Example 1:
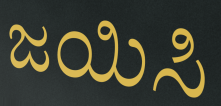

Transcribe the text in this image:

ಜಯಿಸಿ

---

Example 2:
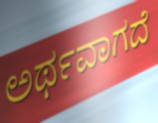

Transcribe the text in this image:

ಅರ್ಥವಾಗದೆ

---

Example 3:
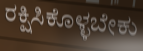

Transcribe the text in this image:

ರಕ್ಷಿಸಿಕೊಳ್ಳಬೇಕು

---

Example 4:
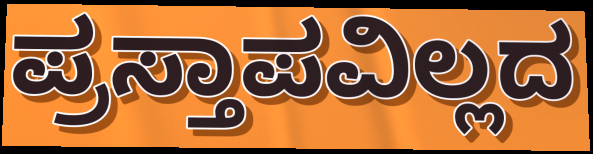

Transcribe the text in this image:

ಪ್ರಸ್ತಾಪವಿಲ್ಲದ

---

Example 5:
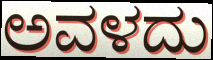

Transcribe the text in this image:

ಅವಳದು